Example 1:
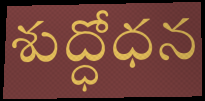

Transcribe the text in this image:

శుద్ధోధన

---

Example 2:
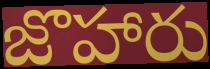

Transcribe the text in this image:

జొహారు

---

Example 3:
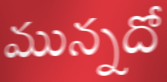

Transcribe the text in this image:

మున్నదో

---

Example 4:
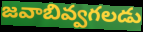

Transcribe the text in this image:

జవాబివ్వగలడు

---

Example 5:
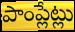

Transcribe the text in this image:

పాంప్లేట్లు